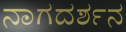
ನಾಗದರ್ಶನ